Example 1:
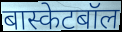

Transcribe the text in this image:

बास्केटबॉल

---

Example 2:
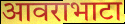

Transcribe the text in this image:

आवराभाटा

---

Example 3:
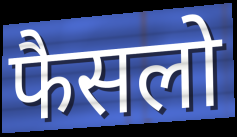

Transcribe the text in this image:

फैसलो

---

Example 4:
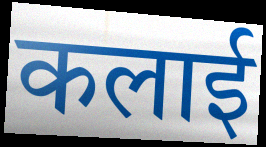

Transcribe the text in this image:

कलाई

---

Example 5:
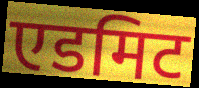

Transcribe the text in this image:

एडमिट